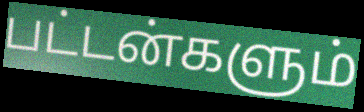
பட்டன்களும்